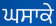
ਘਸਾਕੇ